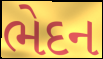
ભેદન